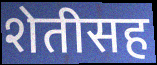
शेतीसह